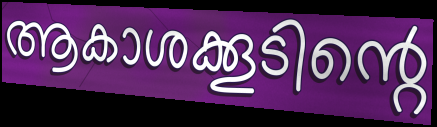
ആകാശക്കൂടിന്റെ